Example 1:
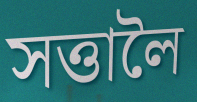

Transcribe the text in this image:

সত্তালৈ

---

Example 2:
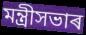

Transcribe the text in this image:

মন্ত্ৰীসভাৰ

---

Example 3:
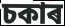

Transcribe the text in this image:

চকাৰ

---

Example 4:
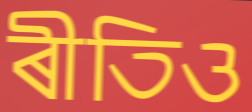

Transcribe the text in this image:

ৰীতিও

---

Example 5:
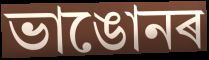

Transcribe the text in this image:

ভাঙোনৰ